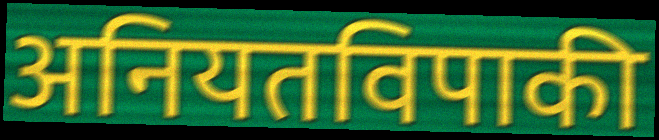
अनियतविपाकी